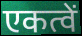
एकत्वें